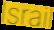
Israil